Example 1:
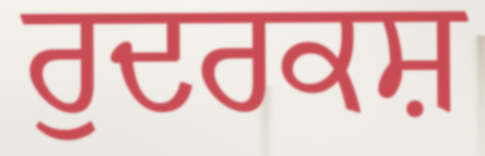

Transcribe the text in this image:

ਰੁਦਰਕਸ਼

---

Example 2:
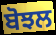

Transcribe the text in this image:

ਬੋਝਲ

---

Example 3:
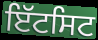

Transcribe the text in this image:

ਇੱਟਸਿਟ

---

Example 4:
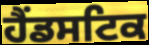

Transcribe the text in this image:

ਹੈਂਡਸਟਿਕ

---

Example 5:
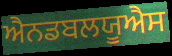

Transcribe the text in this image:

ਐਨਡਬਲਯੂਐਸ